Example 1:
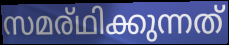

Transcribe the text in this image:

സമര്ഥിക്കുന്നത്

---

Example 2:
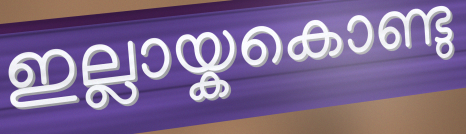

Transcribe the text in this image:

ഇല്ലായ്കകൊണ്ടു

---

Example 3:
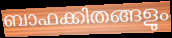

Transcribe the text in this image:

ബാഫക്കിതങ്ങളും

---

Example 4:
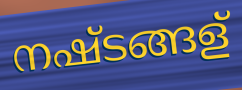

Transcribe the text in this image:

നഷ്ടങ്ങള്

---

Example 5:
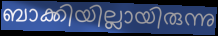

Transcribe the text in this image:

ബാക്കിയില്ലായിരുന്നു